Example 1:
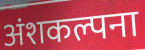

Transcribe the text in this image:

अंशकल्पना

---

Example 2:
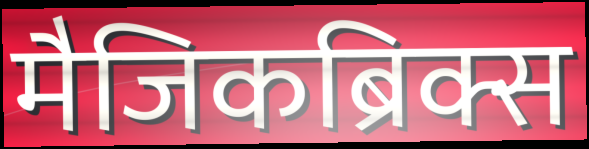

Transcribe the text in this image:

मैजिकब्रिक्स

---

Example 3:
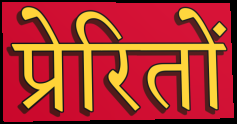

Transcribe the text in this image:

प्रेरितों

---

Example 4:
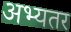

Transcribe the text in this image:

अभ्यतर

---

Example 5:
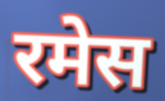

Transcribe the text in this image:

रमेस